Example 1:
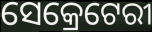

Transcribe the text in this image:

ସେକ୍ରେଟେରୀ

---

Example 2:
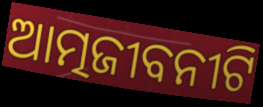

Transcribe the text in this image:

ଆତ୍ମଜୀବନୀଟି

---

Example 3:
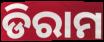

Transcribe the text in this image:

ଡିରାମ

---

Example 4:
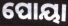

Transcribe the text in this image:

ପୋୟା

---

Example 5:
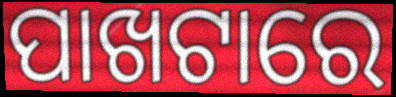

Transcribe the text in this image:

ପାଖଟାରେ